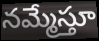
నమ్మేస్తూ